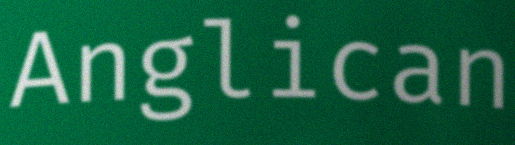
Anglican